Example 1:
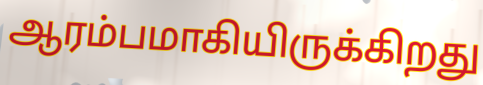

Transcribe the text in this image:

ஆரம்பமாகியிருக்கிறது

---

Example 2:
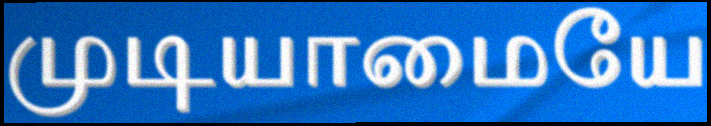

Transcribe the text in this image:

முடியாமையே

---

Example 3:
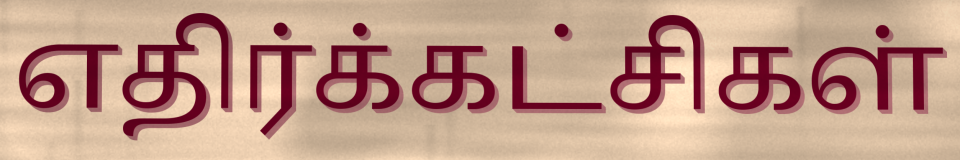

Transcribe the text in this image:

எதிர்க்கட்சிகள்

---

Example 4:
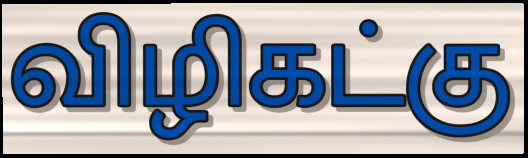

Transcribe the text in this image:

விழிகட்கு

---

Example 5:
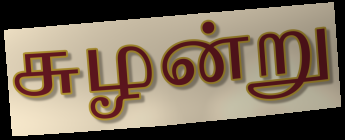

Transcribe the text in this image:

சுழன்று